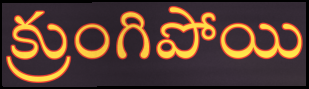
క్రుంగిపోయి